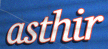
asthir